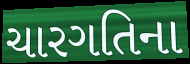
ચારગતિના